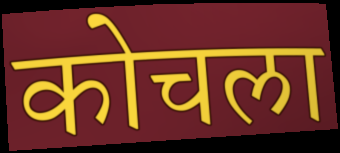
कोचला